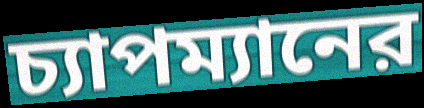
চ্যাপম্যানের